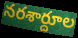
నరశార్దూల